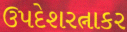
ઉપદેશરત્નાકર